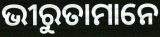
ଭୀରୁତାମାନେ